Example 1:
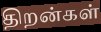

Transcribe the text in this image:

திறன்கள்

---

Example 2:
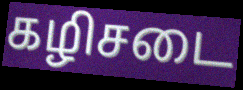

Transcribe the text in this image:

கழிசடை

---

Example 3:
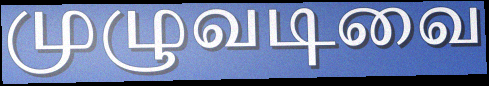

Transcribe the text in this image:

முழுவடிவை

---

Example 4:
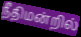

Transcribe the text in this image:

நீதிமன்றில்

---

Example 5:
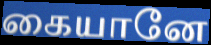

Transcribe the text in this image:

கையானே